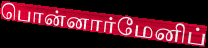
பொன்னார்மேனிப்